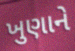
ખુણાને